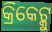
କ୍ରିକେଟ୍କୁ